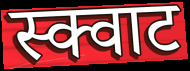
स्क्वाट